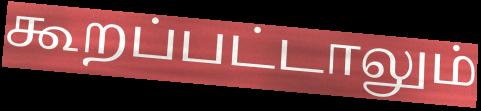
கூறப்பட்டாலும்